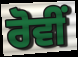
ਰੋਵੀਂ